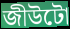
জীউটো